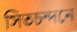
সিতচন্দনে